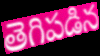
తెగిపడిన